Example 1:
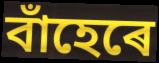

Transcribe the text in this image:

বাঁহেৰে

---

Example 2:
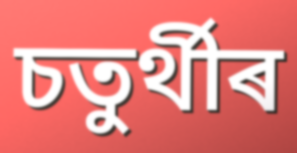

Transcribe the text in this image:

চতুৰ্থীৰ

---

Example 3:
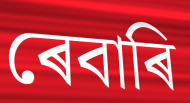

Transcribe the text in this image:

ৰেবাৰি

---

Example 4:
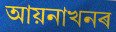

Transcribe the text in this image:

আয়নাখনৰ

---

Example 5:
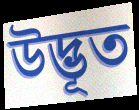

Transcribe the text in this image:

উদ্ভূত